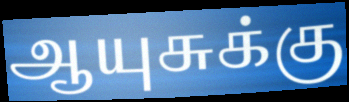
ஆயுசுக்கு